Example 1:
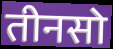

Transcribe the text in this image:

तीनसो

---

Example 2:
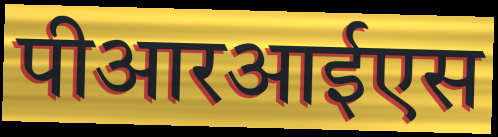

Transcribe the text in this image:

पीआरआईएस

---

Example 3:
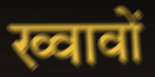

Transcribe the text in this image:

ख्वावों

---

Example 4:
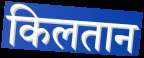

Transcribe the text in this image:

किलतान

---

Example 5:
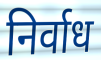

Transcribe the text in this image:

निर्वाध